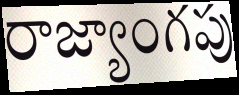
రాజ్యాంగపు